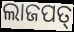
ଲାଜପତ୍